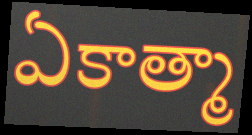
ఏకాత్మా